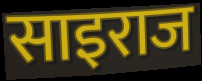
साइराज